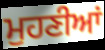
ਮੁਹਣੀਆਂ